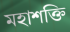
মহাশক্তি